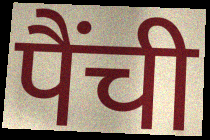
पैंची